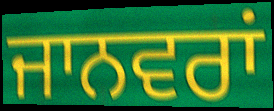
ਜਾਨਵਰਾਂ